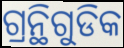
ଗ୍ରନ୍ଥିଗୁଡିକ